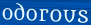
odorous